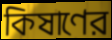
কিষাণের